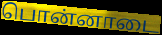
பொன்னாடை